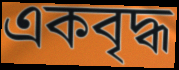
একবৃদ্ধ